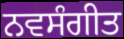
ਨਵਸੰਗੀਤ